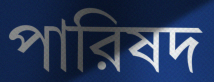
পারিষদ